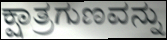
ಕ್ಷಾತ್ರಗುಣವನ್ನು